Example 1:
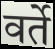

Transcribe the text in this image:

वर्ते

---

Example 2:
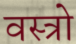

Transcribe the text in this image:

वस्त्रो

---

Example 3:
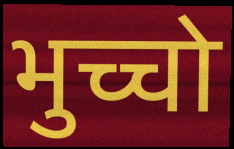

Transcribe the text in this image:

भुच्चो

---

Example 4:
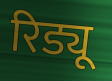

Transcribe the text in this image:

रिड्यू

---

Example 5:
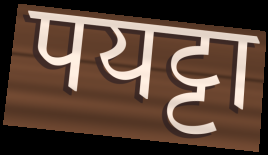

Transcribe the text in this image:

पयट्टा